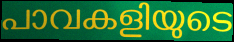
പാവകളിയുടെ